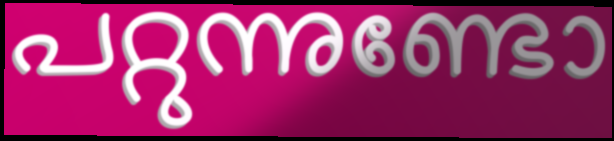
പറ്റുന്നുണ്ടോ